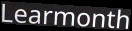
Learmonth